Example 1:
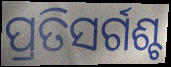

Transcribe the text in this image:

ପ୍ରତିସର୍ଗଶ୍ଚ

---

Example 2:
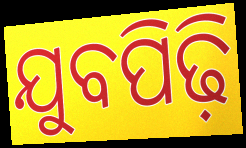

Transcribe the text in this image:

ଯୁବପିଢ଼ି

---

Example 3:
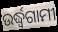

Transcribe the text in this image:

ଉର୍ଦ୍ଧ୍ୱଗାମୀ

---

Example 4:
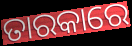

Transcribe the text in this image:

ତାରକାରେ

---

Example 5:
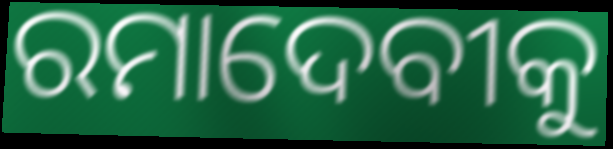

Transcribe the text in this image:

ରମାଦେବୀକୁ